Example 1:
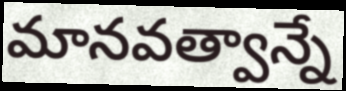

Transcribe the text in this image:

మానవత్వాన్నే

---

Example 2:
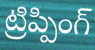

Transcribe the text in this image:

ట్రిప్పింగ్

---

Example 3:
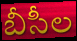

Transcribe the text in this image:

బీసీల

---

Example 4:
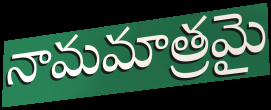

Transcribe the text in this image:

నామమాత్రమై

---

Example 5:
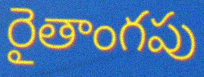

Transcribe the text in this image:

రైతాంగపు